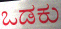
ಒಡಕು